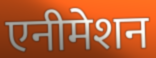
एनीमेशन